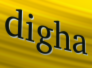
digha